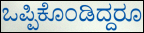
ಒಪ್ಪಿಕೊಂಡಿದ್ದರೂ